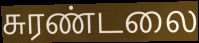
சுரண்டலை